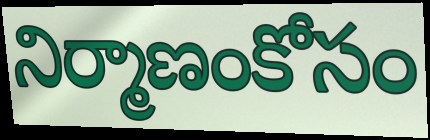
నిర్మాణంకోసం